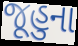
જૂહુના